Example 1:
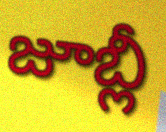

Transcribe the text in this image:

జూబ్లీ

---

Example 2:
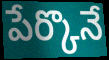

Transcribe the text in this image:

పేర్కొనే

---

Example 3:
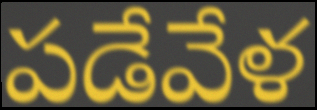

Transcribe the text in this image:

పడేవేళ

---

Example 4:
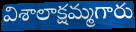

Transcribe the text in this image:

విశాలాక్షమ్మగారు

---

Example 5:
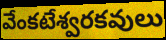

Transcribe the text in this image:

వేంకటేశ్వరకవులు